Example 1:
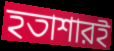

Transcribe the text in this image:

হতাশারই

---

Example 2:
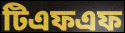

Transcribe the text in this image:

টিএফএফ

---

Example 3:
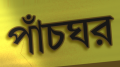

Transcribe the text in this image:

পাঁচঘর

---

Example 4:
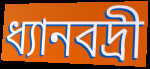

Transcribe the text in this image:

ধ্যানবদ্রী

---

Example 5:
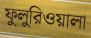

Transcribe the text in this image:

ফুলুরিওয়ালা